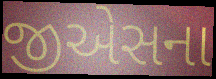
જીએસના